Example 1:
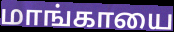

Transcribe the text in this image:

மாங்காயை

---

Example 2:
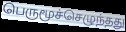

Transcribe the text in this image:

பெருமூச்செழுந்தது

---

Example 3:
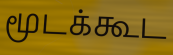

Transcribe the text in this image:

மூடக்கூட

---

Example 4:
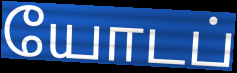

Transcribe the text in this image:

யோடப்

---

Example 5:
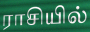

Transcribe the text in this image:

ராசியில்